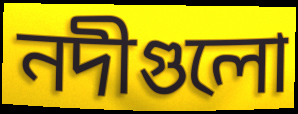
নদীগুলো